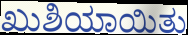
ಖುಶಿಯಾಯಿತು